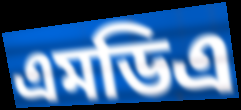
এমডিএ